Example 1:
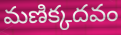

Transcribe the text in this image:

మణిక్కదవం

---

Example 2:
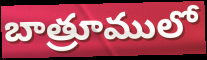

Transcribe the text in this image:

బాత్రూములో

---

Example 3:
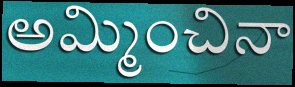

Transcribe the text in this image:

అమ్మించినా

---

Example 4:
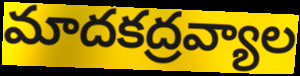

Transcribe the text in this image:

మాదకద్రవ్యాల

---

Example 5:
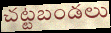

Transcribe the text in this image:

చట్టబండలు